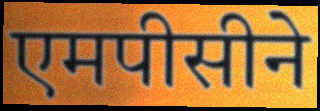
एमपीसीने